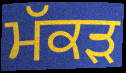
ਮੱਕੜ